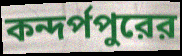
কন্দর্পপুরের